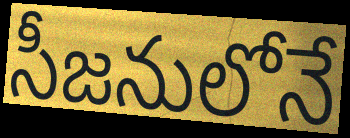
సీజనులోనే